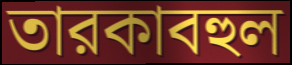
তারকাবহুল